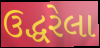
ઉદ્ધરેલા